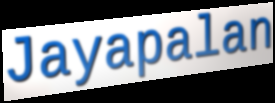
Jayapalan